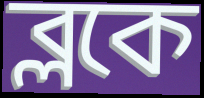
ব্লকে